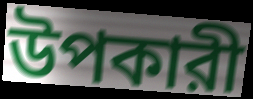
উপকারী